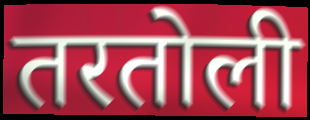
तरतोली